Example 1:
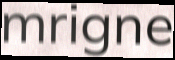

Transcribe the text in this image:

mrigne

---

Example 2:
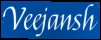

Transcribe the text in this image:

Veejansh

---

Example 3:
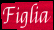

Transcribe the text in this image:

Figlia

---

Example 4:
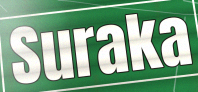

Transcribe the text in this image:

Suraka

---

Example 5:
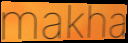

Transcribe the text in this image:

makha